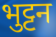
भुट्टन